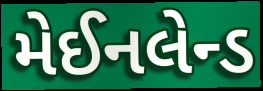
મેઈનલેન્ડ